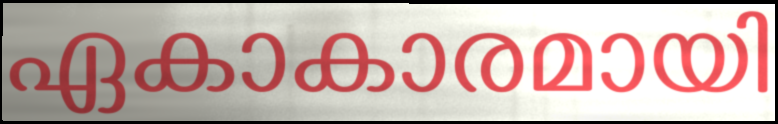
ഏകാകാരമായി